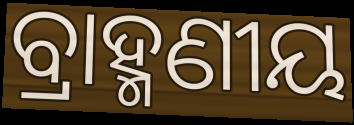
ବ୍ରାହ୍ମଣୀୟ